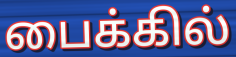
பைக்கில்